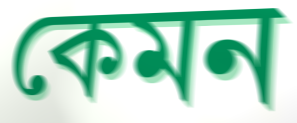
কেমন